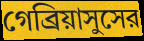
গেব্রিয়াসুসের